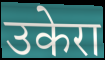
उकेरा